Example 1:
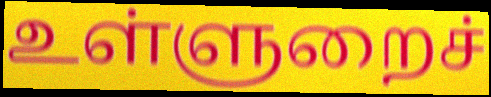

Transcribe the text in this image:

உள்ளுறைச்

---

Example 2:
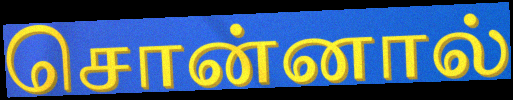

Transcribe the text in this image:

சொன்னால்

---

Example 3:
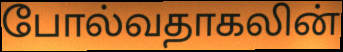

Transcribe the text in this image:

போல்வதாகலின்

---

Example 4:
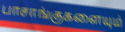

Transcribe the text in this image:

பாசாங்குகளையும்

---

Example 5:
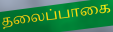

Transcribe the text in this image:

தலைப்பாகை